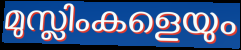
മുസ്ലിംകളെയും